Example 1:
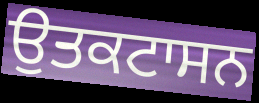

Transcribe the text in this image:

ਉਤਕਟਾਸਨ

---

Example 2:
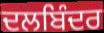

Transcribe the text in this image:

ਦਲਬਿੰਦਰ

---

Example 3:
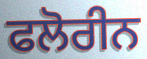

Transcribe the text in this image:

ਫਲੋਰੀਨ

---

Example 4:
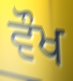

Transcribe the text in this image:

ਵੌਖ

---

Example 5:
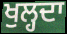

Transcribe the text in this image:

ਖੁਲ੍ਹਦਾ